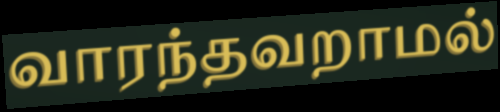
வாரந்தவறாமல்